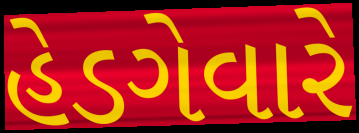
હેડગેવારે